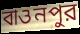
বাওনপুর